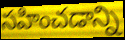
సహించడాన్ని